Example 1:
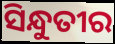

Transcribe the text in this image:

ସିନ୍ଧୁତୀର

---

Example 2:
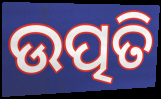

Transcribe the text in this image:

ଉତ୍ପତି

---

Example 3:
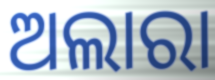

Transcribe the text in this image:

ଅଲାରା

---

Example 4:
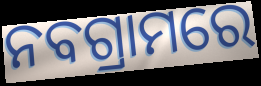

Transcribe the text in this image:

ନବଗ୍ରାମରେ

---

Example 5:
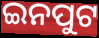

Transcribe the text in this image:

ଇନପୁଟ